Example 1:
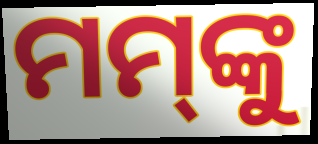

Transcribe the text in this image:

ମମ୍‌ଙ୍କୁ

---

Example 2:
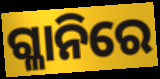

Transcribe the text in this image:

ଗ୍ଳାନିରେ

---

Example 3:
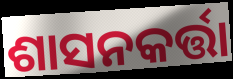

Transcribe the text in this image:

ଶାସନକର୍ତ୍ତା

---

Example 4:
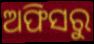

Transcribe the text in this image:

ଅଫିସରୁ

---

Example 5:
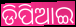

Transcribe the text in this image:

ଡିପିଆଇ